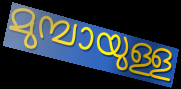
മുമ്പായുള്ള